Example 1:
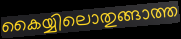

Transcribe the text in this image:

കൈയ്യിലൊതുങ്ങാത്ത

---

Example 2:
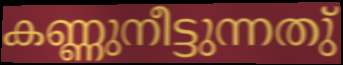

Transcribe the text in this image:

കണ്ണുനീട്ടുന്നതു്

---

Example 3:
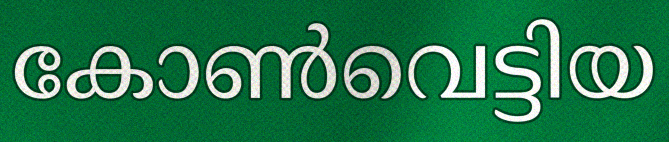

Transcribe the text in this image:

കോൺവെട്ടിയ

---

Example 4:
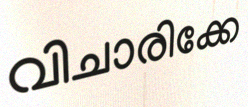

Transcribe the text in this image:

വിചാരിക്കേ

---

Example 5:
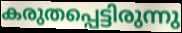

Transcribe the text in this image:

കരുതപ്പെട്ടിരുന്നു